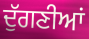
ਦੁੱਗਣੀਆਂ